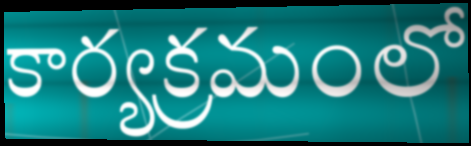
కార్యక్రమంలో